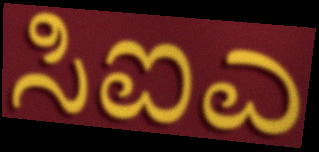
ಸಿಐಎ